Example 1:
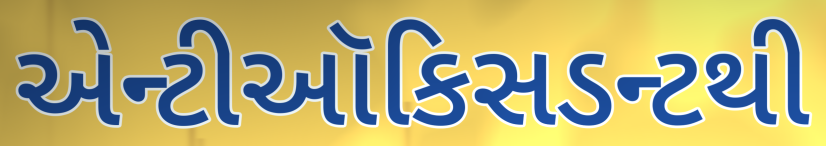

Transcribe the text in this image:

એન્ટીઑકિસડન્ટથી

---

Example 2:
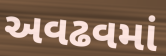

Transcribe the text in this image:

અવઢવમાં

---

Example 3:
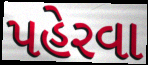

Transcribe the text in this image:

પહેરવા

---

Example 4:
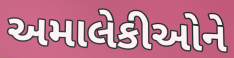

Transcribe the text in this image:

અમાલેકીઓને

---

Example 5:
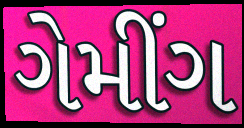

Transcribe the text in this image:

ગેમીંગ